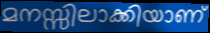
മനസ്സിലാക്കിയാണ്